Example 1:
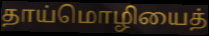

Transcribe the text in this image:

தாய்மொழியைத்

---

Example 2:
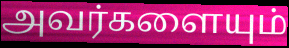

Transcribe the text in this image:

அவர்களையும்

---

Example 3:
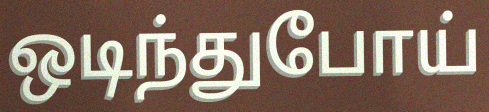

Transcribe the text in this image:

ஒடிந்துபோய்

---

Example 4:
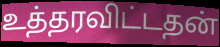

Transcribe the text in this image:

உத்தரவிட்டதன்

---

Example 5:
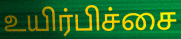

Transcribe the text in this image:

உயிர்பிச்சை